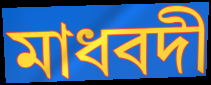
মাধবদী